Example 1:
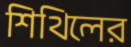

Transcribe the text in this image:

শিথিলের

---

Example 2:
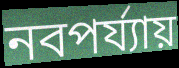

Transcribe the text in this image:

নবপর্য্যায়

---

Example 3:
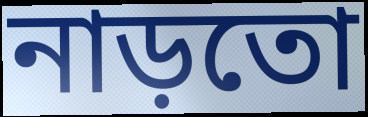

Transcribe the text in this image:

নাড়তো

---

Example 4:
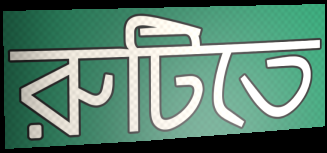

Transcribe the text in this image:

রুটিতে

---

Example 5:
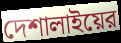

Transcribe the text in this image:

দেশালাইয়ের